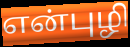
என்புழி